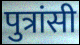
पुत्रांसी